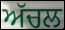
ਅੱਚਲ